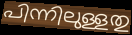
പിന്നിലുള്ളതു